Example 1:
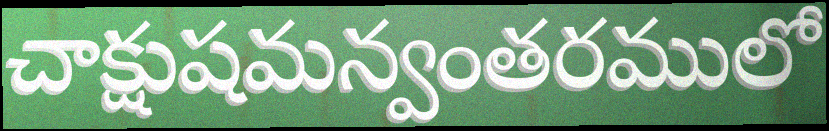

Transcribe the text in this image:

చాక్షుషమన్వంతరములో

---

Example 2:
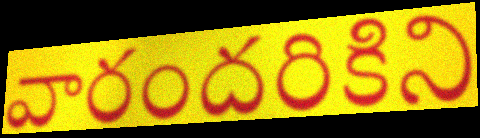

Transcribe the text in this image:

వారందరికిని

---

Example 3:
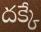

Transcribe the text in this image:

దక్కే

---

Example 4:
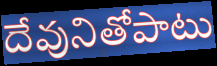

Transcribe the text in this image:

దేవునితోపాటు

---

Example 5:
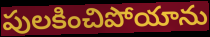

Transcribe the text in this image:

పులకించిపోయాను